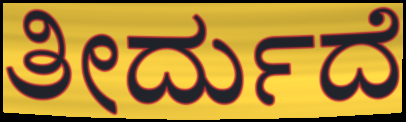
ತೀರ್ದುದೆ